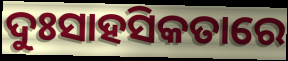
ଦୁଃସାହସିକତାରେ